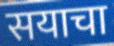
सयाचा